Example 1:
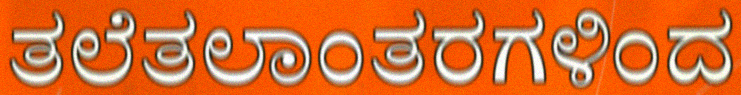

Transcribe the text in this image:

ತಲೆತಲಾಂತರಗಳಿಂದ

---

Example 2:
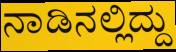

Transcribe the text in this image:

ನಾಡಿನಲ್ಲಿದ್ದು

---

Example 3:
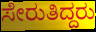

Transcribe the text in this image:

ಸೇರುತಿದ್ದರು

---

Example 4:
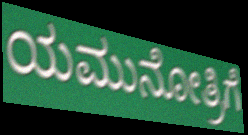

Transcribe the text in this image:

ಯಮುನೋತ್ರಿಗೆ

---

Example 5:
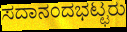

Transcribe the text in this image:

ಸದಾನಂದಭಟ್ಟರು